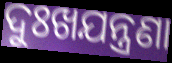
ଦୁଃଖଯନ୍ତ୍ରଣା